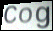
Cog